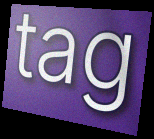
tag